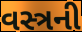
વસ્ત્રની